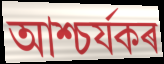
আশ্চৰ্যকৰ